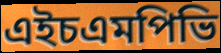
এইচএমপিভি